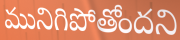
మునిగిపోతోందని